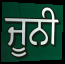
ਜੂਨੀ